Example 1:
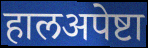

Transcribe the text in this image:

हालअपेष्टा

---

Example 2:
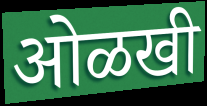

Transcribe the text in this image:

ओळखी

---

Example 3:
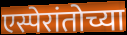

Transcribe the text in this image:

एस्पेरांतोच्या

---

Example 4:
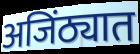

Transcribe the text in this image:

अजिंठ्यात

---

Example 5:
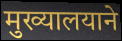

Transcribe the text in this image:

मुख्यालयाने